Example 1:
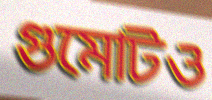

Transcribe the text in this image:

গুমোটও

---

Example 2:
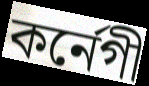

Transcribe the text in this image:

কর্নেগী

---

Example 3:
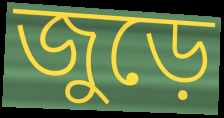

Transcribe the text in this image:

জুড়ে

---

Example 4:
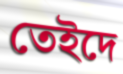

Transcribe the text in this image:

তেইদে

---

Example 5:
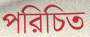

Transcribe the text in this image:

পরিচিত